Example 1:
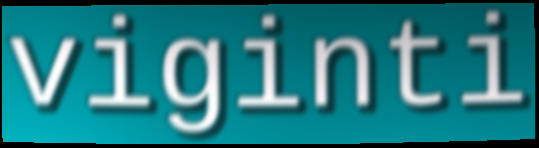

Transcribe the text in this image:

viginti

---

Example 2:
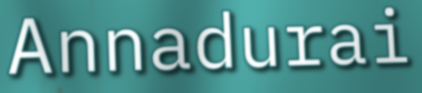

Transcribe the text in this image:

Annadurai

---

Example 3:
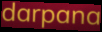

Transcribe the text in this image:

darpana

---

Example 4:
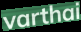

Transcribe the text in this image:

varthai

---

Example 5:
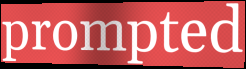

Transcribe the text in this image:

prompted